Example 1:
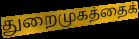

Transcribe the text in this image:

துறைமுகத்தைக்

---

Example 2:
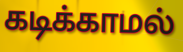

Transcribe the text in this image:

கடிக்காமல்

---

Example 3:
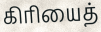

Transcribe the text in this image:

கிரியைத்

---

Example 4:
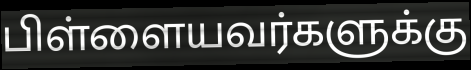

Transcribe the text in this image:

பிள்ளையவர்களுக்கு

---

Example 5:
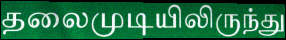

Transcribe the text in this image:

தலைமுடியிலிருந்து